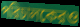
পরিচালকেরও